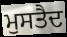
ਮੁਸਤੈਦ